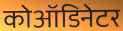
कोऑडिनेटर